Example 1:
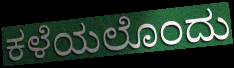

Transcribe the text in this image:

ಕಳೆಯಲೊಂದು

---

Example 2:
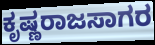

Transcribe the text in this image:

ಕೃಷ್ಣರಾಜಸಾಗರ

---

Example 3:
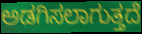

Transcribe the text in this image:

ಅಡಗಿಸಲಾಗುತ್ತದೆ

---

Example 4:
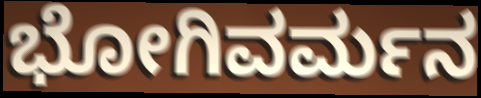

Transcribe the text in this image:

ಭೋಗಿವರ್ಮನ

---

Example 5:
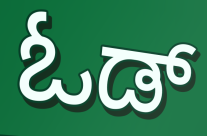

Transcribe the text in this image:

ಓಡ್